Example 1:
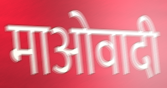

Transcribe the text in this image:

माओवादी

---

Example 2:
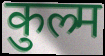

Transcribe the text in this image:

कुल्म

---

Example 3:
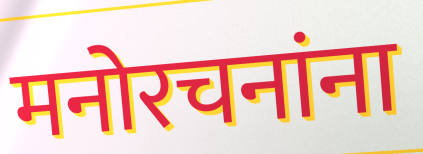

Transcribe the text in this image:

मनोरचनांना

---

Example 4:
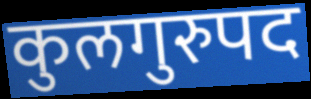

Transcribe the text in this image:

कुलगुरुपद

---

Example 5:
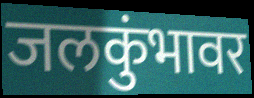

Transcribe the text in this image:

जलकुंभावर